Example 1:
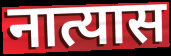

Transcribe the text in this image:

नात्यास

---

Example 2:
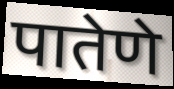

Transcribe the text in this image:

पातेणे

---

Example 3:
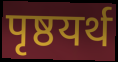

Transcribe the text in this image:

पृष्ठयर्थ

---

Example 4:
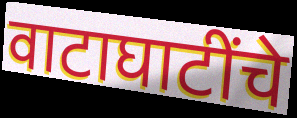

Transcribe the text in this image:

वाटाघाटींचे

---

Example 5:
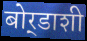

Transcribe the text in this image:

बोर्डाशी